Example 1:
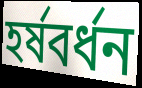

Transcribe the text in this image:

হর্ষবর্ধন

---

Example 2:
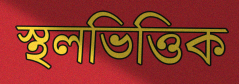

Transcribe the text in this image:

স্থলভিত্তিক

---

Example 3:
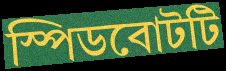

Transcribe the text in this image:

স্পিডবোটটি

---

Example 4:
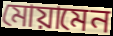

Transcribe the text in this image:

মোয়ামেন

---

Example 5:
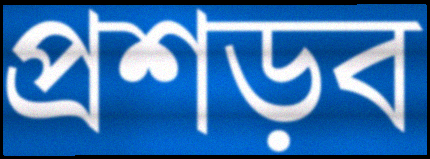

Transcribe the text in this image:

প্রশড়ব